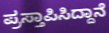
ಪ್ರಸ್ತಾಪಿಸಿದ್ದಾನೆ